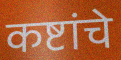
कष्टांचे